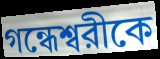
গন্ধেশ্বরীকে